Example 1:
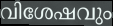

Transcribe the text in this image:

വിശേഷവും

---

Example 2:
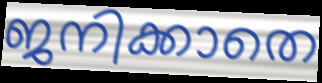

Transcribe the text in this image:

ജനിക്കാതെ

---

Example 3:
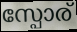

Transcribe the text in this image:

സ്പോര്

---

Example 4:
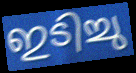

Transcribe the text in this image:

ഇടിച്ചു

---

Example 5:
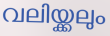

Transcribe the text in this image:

വലിയ്ക്കലും